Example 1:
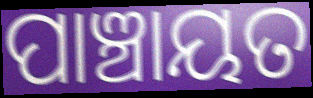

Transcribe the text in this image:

ପାଞ୍ଚାୟତ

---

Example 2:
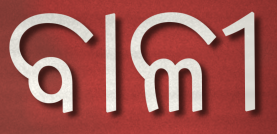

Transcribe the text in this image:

ବାଳୀ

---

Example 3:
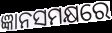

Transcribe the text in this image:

ଜ୍ଞାନସମକ୍ଷରେ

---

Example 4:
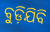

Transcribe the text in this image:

ବୁଡ଼ିଯିବି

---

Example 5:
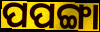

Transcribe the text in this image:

ପପଙ୍ଗା